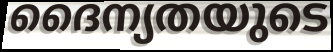
ദൈന്യതയുടെ